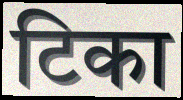
टिका